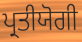
ਪ੍ਰਤੀਯੋਗੀ